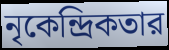
নৃকেন্দ্রিকতার